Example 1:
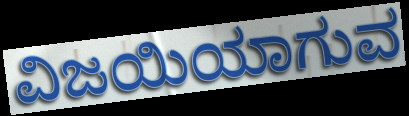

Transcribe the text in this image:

ವಿಜಯಿಯಾಗುವ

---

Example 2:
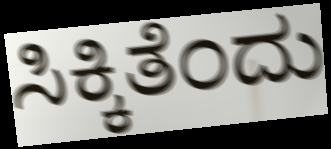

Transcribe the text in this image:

ಸಿಕ್ಕಿತೆಂದು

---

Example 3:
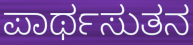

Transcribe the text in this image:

ಪಾರ್ಥಸುತನ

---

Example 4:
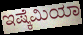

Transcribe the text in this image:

ಇಷ್ಕೆಮಿಯಾ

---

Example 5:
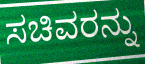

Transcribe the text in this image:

ಸಚಿವರನ್ನು